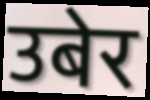
उबेर